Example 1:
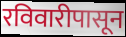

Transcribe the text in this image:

रविवारीपासून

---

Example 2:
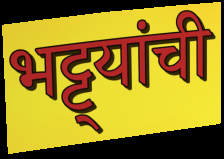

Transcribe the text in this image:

भट्ट्यांची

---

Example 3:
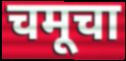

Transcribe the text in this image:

चमूचा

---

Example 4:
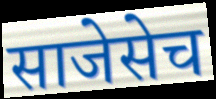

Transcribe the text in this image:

साजेसेच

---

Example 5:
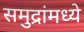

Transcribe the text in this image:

समुद्रांमध्ये